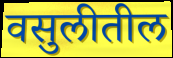
वसुलीतील